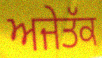
ਅਜੇਤੱਕ